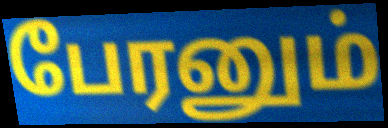
பேரனும்